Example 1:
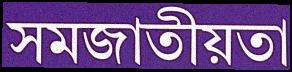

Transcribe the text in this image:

সমজাতীয়তা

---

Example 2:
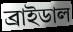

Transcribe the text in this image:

ব্রাইডাল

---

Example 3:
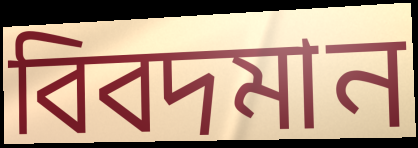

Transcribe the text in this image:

বিবদমান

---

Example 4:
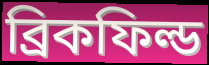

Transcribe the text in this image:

ব্রিকফিল্ড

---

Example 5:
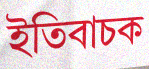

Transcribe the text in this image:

ইতিবাচক